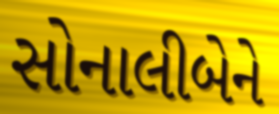
સોનાલીબેને